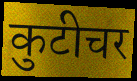
कुटीचर